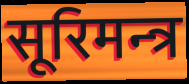
सूरिमन्त्र